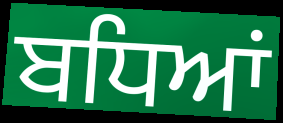
ਬਧਿਆਂ